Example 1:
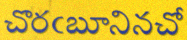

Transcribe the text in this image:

చొరఁబూనినచో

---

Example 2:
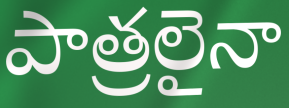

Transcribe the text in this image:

పాత్రలైనా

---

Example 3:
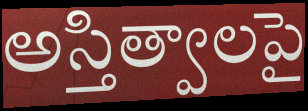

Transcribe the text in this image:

అస్తిత్వాలపై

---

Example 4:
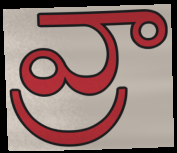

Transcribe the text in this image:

వ్రా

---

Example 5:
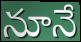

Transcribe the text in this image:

నూనే